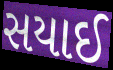
સયાઈ